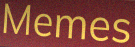
Memes